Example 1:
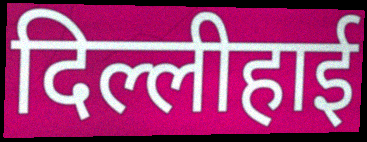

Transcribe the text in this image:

दिल्लीहाई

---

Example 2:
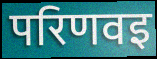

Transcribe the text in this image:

परिणवइ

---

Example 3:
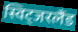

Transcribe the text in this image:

स्विट्जरलैंड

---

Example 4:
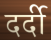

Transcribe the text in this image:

दर्दी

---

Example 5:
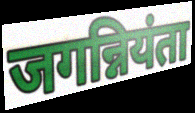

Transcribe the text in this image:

जगन्नियंता